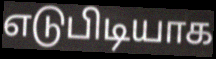
எடுபிடியாக